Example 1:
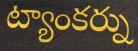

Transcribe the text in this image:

ట్యాంకర్ను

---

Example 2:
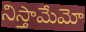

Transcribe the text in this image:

నిస్తామేమో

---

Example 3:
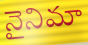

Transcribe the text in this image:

నైనిమా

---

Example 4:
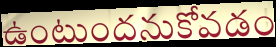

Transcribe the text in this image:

ఉంటుందనుకోవడం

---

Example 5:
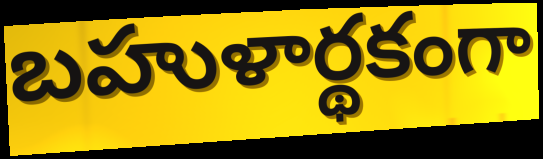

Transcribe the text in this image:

బహుళార్థకంగా